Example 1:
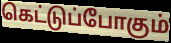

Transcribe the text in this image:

கெட்டுப்போகும்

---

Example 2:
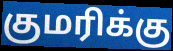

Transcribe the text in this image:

குமரிக்கு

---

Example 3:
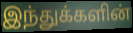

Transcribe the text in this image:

இந்துக்களின்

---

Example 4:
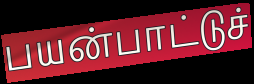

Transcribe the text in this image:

பயன்பாட்டுச்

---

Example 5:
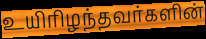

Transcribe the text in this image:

உயிரிழந்தவர்களின்